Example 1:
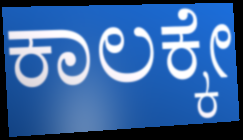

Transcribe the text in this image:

ಕಾಲಕ್ಕೇ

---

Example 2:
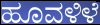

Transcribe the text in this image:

ಹೂವಳಿಳೆ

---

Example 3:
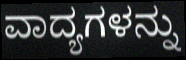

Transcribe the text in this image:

ವಾದ್ಯಗಳನ್ನು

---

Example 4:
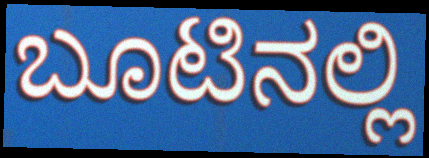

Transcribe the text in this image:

ಬೂಟಿನಲ್ಲಿ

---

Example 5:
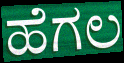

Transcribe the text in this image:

ಹೆಗಲ